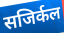
सजिर्कल